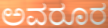
ಅವರೂರ